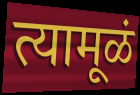
त्यामूळं